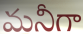
మనీగా